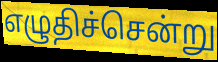
எழுதிச்சென்று